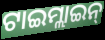
ଟାଇମ୍ଲାଇନ୍